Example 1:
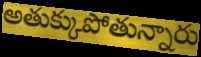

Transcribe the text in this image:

అతుక్కుపోతున్నారు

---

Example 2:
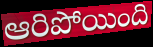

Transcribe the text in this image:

ఆరిపోయింది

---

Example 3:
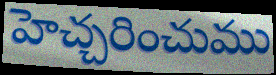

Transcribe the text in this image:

హెచ్చరించుము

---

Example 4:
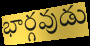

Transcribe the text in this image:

భార్గవుడు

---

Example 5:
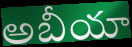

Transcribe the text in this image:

అబీయా